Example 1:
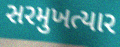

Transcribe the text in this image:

સરમુખત્યાર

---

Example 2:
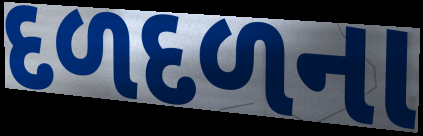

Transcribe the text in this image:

દળદળના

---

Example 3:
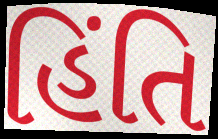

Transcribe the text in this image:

હિંતિ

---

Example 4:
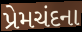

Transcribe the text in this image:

પ્રેમચંદના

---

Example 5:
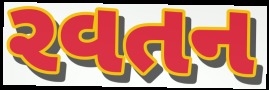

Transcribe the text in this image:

રવતન